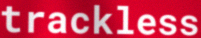
trackless